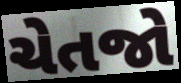
ચેતજો